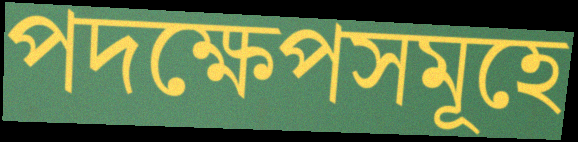
পদক্ষেপসমূহে